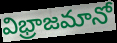
విభ్రాజమానో